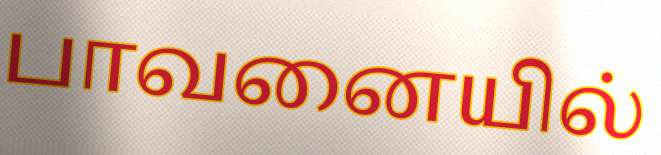
பாவனையில்